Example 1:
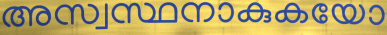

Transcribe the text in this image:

അസ്വസ്ഥനാകുകയോ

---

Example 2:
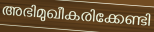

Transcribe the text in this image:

അഭിമുഖീകരിക്കേണ്ടി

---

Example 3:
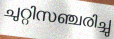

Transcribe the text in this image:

ചുറ്റിസഞ്ചരിച്ചു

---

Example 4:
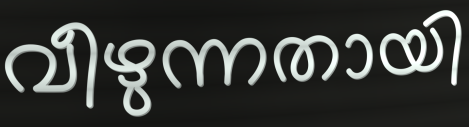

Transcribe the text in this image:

വീഴുന്നതായി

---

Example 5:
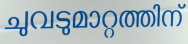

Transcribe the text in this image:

ചുവടുമാറ്റത്തിന്